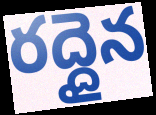
రద్దైన